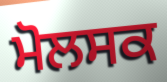
ਮੋਲਸਕ